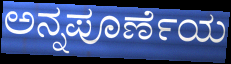
ಅನ್ನಪೂರ್ಣೆಯ